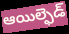
ఆయిల్ఫెడ్